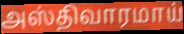
அஸ்திவாரமாய்